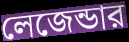
লেজেন্ডার